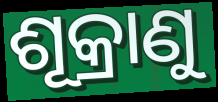
ଶୂକ୍ରାଣୁ